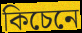
কিচেনে